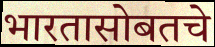
भारतासोबतचे